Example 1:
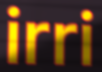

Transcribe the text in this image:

irri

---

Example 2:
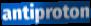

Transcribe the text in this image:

antiproton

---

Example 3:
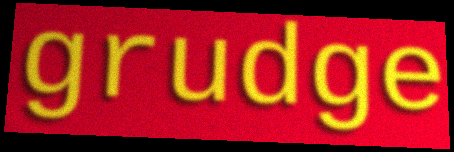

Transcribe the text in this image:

grudge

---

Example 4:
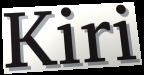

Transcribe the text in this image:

Kiri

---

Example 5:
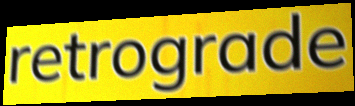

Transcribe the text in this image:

retrograde